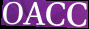
OACC